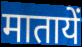
मातायें